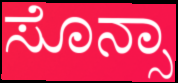
ಸೊನ್ಸಾ